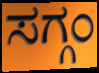
ಸಗ್ಗಂ